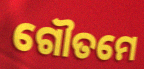
ଗୌତମେ